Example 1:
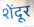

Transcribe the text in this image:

शेंदूर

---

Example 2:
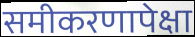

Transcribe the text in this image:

समीकरणापेक्षा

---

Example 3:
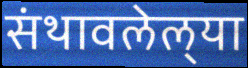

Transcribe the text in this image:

संथावलेल्या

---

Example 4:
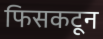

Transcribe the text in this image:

फिसकटून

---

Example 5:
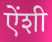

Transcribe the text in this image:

ऐंशी